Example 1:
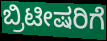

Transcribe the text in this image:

ಬ್ರಿಟೀಷರಿಗೆ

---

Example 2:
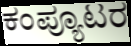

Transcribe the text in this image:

ಕಂಪ್ಯೂಟರ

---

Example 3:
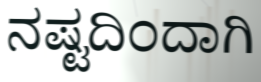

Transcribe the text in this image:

ನಷ್ಟದಿಂದಾಗಿ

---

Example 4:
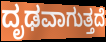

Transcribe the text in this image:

ದೃಢವಾಗುತ್ತದೆ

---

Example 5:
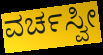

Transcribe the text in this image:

ವರ್ಚಸ್ವೀ